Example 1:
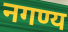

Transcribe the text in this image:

नगण्य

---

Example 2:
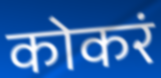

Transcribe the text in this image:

कोकरं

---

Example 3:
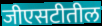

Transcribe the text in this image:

जीएसटीतील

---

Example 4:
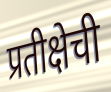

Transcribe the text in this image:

प्रतीक्षेची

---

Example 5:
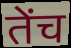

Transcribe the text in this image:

तेंच